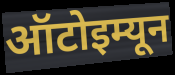
ऑटोइम्यून